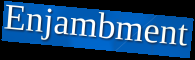
Enjambment